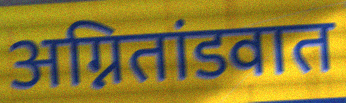
अग्नितांडवात